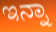
ಇನ್ನಾ